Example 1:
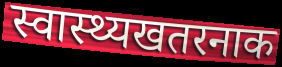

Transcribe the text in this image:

स्वास्थ्यखतरनाक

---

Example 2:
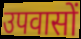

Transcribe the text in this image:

उपवासों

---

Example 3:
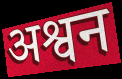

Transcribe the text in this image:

अश्वन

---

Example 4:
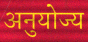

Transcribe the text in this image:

अनुयोज्य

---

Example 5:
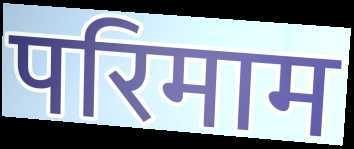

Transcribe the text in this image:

परिमाम